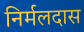
निर्मलदास